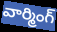
వార్మింగ్